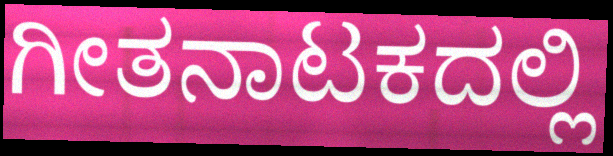
ಗೀತನಾಟಕದಲ್ಲಿ